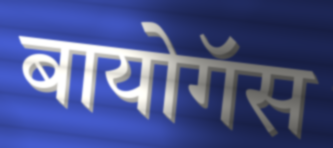
बायोगॅस